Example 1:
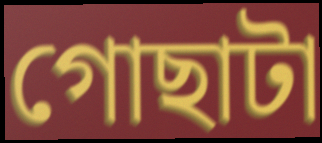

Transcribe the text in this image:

গোছাটা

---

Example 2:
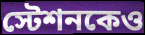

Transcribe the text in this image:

স্টেশনকেও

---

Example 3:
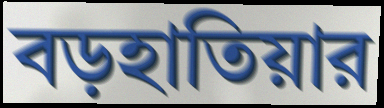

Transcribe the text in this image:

বড়হাতিয়ার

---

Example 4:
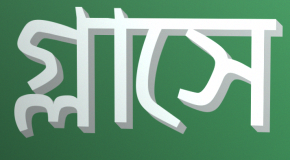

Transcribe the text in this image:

গ্লাসে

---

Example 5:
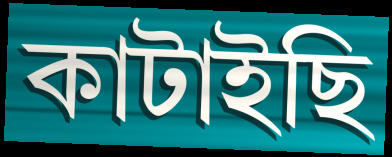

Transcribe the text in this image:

কাটাইছি